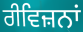
ਰੀਵਿਜ਼ਨਾਂ